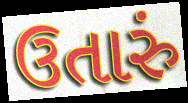
ઉતારું